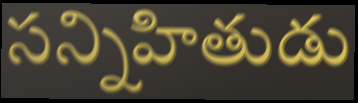
సన్నిహితుడు